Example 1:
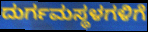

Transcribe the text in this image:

ದುರ್ಗಮಸ್ಥಳಗಳಿಗೆ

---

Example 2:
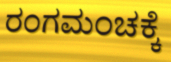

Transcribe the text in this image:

ರಂಗಮಂಚಕ್ಕೆ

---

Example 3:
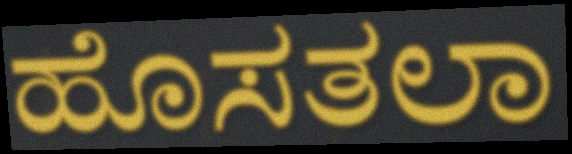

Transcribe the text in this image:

ಹೊಸತಲಾ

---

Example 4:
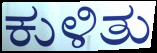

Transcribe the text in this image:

ಕುಳಿತು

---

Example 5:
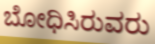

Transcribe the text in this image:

ಬೋಧಿಸಿರುವರು